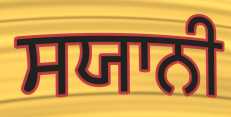
ਸਯਾਨੀ